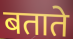
बताते